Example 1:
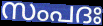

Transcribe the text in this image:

സംപദഃ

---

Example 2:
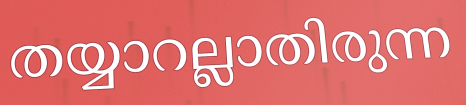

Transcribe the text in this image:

തയ്യാറല്ലാതിരുന്ന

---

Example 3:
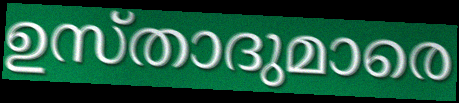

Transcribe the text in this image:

ഉസ്താദുമാരെ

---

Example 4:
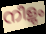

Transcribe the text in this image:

നീളും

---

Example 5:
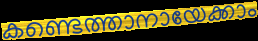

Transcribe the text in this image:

കണ്ടെത്താനായേക്കാം